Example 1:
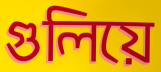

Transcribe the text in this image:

গুলিয়ে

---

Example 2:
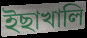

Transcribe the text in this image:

ইছাখালি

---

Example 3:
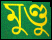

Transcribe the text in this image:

মুণ্ডু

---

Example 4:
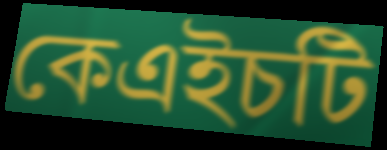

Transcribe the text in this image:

কেএইচটি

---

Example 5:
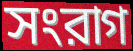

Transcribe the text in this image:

সংরাগ